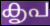
കൃപ